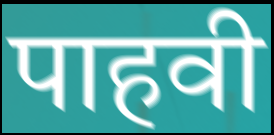
पाहवी